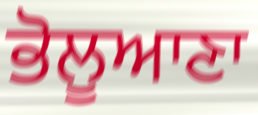
ਭੋਲੂਆਣਾ